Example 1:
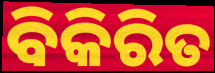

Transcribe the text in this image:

ବିକିରିତ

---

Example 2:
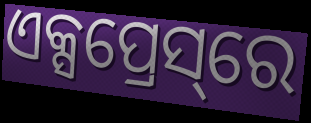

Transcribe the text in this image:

ଏକ୍ସପ୍ରେସ୍‌ରେ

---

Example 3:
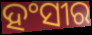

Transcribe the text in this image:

ହଂସୀର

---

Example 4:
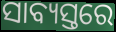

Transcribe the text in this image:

ସାବ୍ୟସ୍ତରେ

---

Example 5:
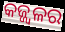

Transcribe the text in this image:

କଜ୍ଜ୍ୱଳର